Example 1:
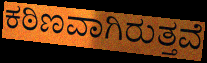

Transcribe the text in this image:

ಕಠಿಣವಾಗಿರುತ್ತವೆ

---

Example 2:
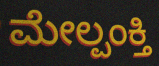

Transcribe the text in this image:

ಮೇಲ್ಪಂಕ್ತಿ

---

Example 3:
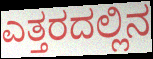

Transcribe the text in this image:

ಎತ್ತರದಲ್ಲಿನ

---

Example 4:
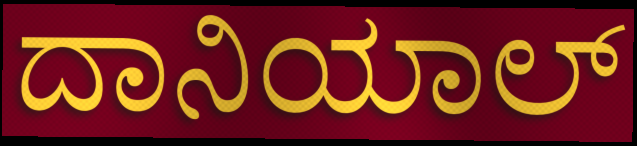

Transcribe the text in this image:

ದಾನಿಯಾಲ್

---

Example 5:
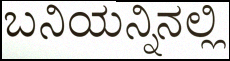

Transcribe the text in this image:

ಬನಿಯನ್ನಿನಲ್ಲಿ